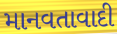
માનવતાવાદી